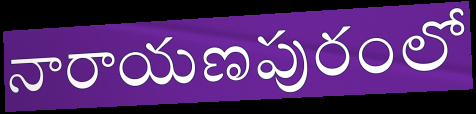
నారాయణపురంలో